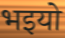
भइयो